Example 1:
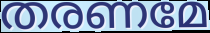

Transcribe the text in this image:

തരണമേ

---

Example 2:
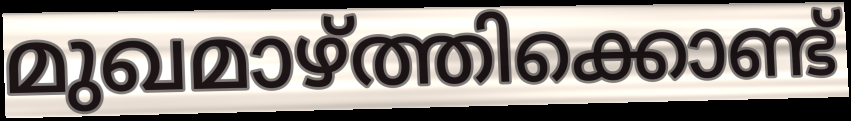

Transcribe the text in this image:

മുഖമാഴ്ത്തിക്കൊണ്ട്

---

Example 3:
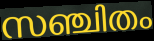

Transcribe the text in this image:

സഞ്ചിതം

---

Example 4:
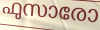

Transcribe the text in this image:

ഫുസാരോ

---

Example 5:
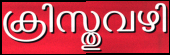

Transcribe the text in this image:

ക്രിസ്തുവഴി